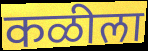
कळीला